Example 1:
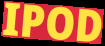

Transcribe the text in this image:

IPOD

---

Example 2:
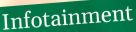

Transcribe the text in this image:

Infotainment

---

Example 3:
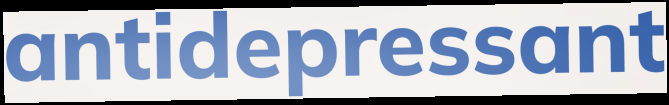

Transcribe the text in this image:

antidepressant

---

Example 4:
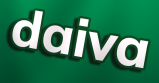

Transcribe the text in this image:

daiva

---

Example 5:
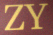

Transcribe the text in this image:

ZY